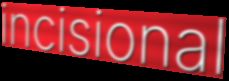
incisional